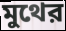
মুথের